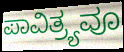
ಪಾವಿತ್ರ್ಯವೂ